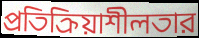
প্রতিক্রিয়াশীলতার